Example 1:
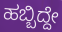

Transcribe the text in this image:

ಹಬ್ಬಿದ್ದೇ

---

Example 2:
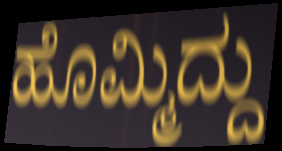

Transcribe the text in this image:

ಹೊಮ್ಮಿದ್ದು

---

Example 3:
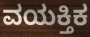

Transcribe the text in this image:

ವಯಕ್ತಿಕ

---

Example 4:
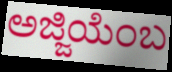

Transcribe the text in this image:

ಅಜ್ಜಿಯೆಂಬ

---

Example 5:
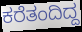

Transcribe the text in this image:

ಕರೆತಂದಿದ್ದ